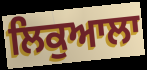
ਲਿਕੁਆਲਾ